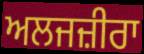
ਅਲਜਜ਼ੀਰਾ